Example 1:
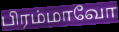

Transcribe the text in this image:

பிரம்மாவோ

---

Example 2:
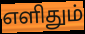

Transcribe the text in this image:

எளிதும்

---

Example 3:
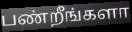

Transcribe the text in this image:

பண்றீங்களா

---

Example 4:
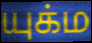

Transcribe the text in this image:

யுக்ம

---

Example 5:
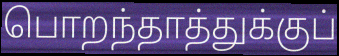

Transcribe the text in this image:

பொறந்தாத்துக்குப்